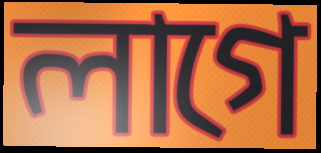
লাগে